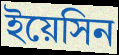
ইয়েসিন